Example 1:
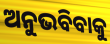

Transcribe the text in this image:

ଅନୁଭବିବାକୁ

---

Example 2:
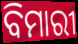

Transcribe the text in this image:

ବିମାରୀ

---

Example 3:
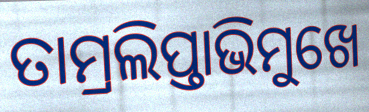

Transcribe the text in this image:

ତାମ୍ରଲିପ୍ତାଭିମୁଖେ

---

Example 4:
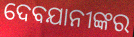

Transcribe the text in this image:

ଦେବଯାନୀଙ୍କର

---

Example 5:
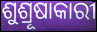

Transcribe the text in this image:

ଶୁଶ୍ରୂଷାକାରୀ